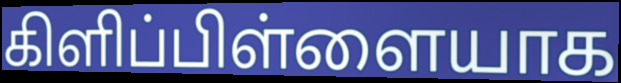
கிளிப்பிள்ளையாக